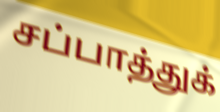
சப்பாத்துக்